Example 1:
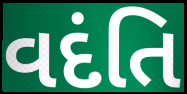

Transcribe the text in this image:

વદંતિ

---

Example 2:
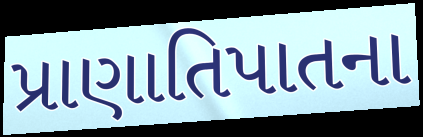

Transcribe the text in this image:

પ્રાણાતિપાતના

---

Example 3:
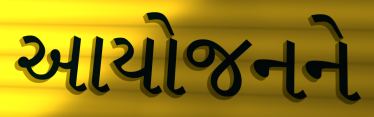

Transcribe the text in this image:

આયોજનને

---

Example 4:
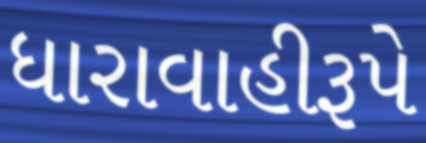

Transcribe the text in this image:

ધારાવાહીરૂપે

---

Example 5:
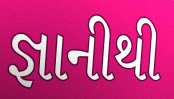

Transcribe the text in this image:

જ્ઞાનીથી